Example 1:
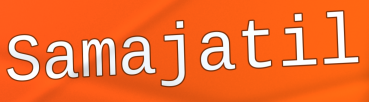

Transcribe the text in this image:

Samajatil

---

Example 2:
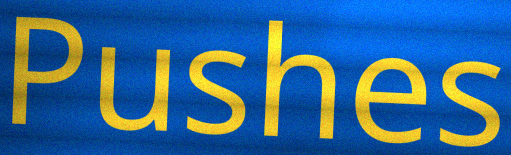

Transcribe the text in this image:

Pushes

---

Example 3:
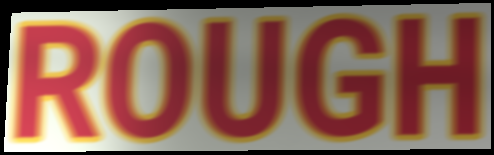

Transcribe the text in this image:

ROUGH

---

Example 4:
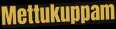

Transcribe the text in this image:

Mettukuppam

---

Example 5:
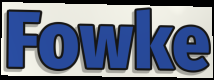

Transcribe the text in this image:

Fowke